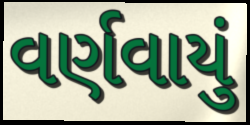
વર્ણવાયું